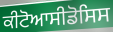
ਕੀਟੋਆਸੀਡੋਸਿਸ